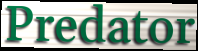
Predator